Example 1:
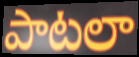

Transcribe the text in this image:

పాటలా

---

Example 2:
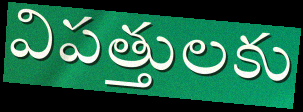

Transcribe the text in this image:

విపత్తులకు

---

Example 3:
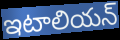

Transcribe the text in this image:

ఇటాలియన్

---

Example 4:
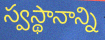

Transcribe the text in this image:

స్వస్థానాన్ని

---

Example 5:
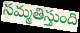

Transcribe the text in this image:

సమ్మతిస్తుంది